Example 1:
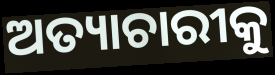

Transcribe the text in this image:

ଅତ୍ୟାଚାରୀକୁ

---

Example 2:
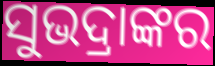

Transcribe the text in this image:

ସୁଭଦ୍ରାଙ୍କର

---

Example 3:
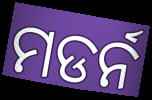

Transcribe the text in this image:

ମଡର୍ନ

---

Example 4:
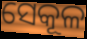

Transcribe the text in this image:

ସେକୂଳ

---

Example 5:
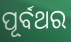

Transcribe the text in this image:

ପୂର୍ବଥର